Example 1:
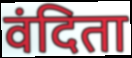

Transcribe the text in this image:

वंदिता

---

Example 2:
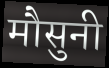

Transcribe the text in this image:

मौसुनी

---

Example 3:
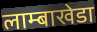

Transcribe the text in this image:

लाम्बाखेडा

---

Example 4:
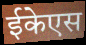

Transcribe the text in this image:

ईकेएस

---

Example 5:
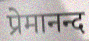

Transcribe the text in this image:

प्रेमानन्द